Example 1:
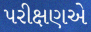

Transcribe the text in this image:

પરીક્ષણએ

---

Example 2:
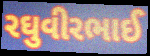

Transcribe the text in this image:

રઘુવીરભાઈ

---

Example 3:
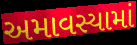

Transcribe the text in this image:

અમાવસ્યામાં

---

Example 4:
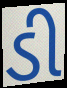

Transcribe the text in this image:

ડી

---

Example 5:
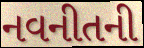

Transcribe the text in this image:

નવનીતની